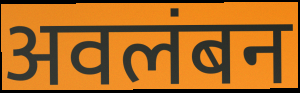
अवलंबन